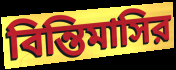
বিন্তিমাসির